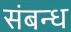
संबन्ध